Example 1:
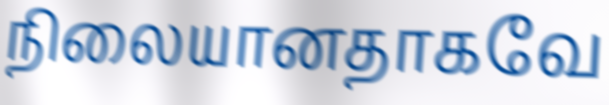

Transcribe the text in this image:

நிலையானதாகவே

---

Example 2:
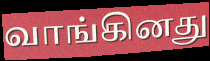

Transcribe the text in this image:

வாங்கினது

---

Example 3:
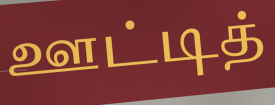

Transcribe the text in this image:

ஊட்டித்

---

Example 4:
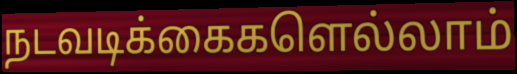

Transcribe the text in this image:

நடவடிக்கைகளெல்லாம்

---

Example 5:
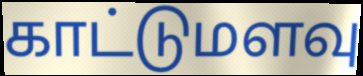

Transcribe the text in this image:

காட்டுமளவு